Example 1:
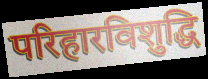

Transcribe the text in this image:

परिहारविशुद्धि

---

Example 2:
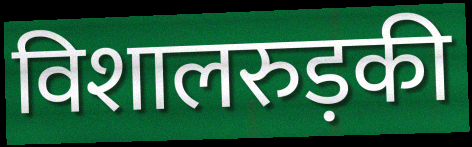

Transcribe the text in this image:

विशालरुड़की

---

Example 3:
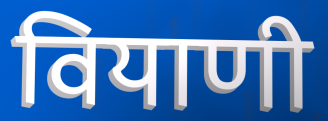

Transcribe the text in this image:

वियाणी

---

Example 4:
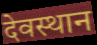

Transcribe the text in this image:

देवस्थान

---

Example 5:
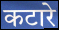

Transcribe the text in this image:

कटारे